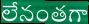
లేనంతగా